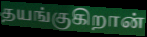
தயங்குகிறான்